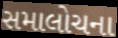
સમાલોચના